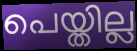
പെയ്തില്ല